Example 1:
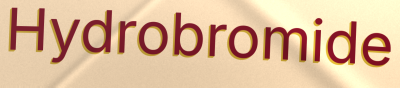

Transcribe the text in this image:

Hydrobromide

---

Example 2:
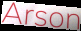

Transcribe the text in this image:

Arson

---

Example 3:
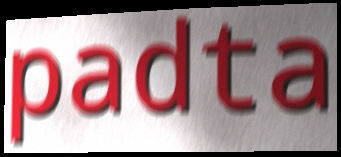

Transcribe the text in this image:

padta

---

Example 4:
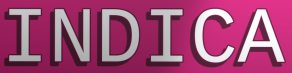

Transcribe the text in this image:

INDICA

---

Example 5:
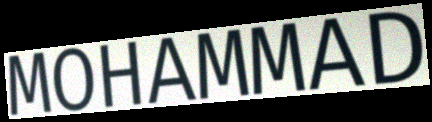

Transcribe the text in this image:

MOHAMMAD